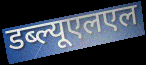
डब्ल्यूएलएल